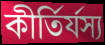
কীর্তির্যস্য